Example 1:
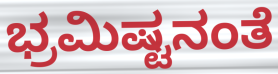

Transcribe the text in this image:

ಭ್ರಮಿಷ್ಟನಂತೆ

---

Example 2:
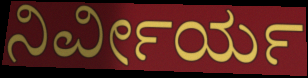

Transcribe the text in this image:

ನಿರ್ವೀರ್ಯ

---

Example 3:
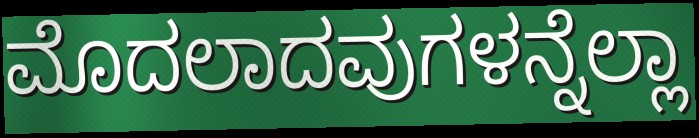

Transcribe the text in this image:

ಮೊದಲಾದವುಗಳನ್ನೆಲ್ಲಾ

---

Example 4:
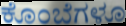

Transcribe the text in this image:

ಕೊಂಬೆಗಳೂ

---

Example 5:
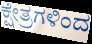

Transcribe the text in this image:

ಕ್ಷೇತ್ರಗಳಿಂದ